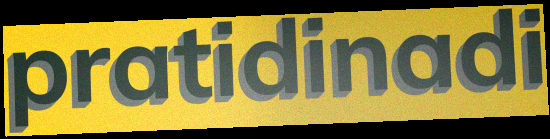
pratidinadi